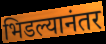
भिडल्यानंतर